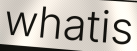
whatis